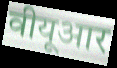
वीयूआर